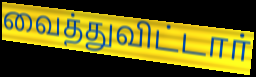
வைத்துவிட்டார்